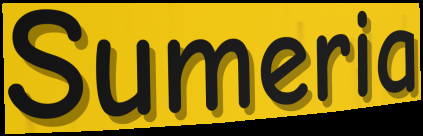
Sumeria